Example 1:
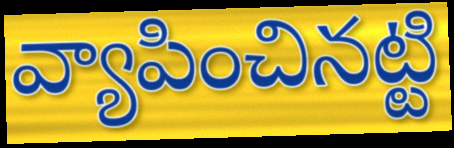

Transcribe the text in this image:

వ్యాపించినట్టి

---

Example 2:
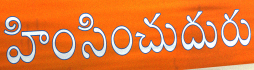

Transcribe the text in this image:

హింసించుదురు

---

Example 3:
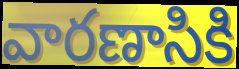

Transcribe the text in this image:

వారణాసికి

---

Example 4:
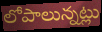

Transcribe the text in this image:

లోపాలున్నట్లు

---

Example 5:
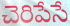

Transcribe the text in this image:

చెరిపేసే